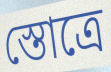
স্তোত্রে